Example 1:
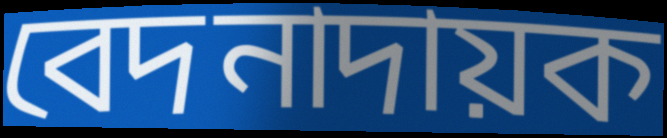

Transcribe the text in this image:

বেদনাদায়ক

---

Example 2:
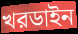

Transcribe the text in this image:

খরডাইন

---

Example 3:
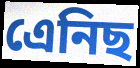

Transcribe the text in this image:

এেনিছ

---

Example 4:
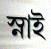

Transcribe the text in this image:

স্নাই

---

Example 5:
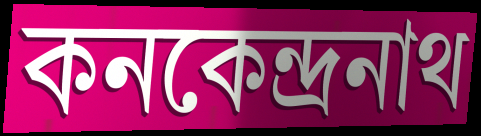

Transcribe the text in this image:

কনকেন্দ্রনাথ